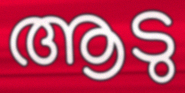
ആടു